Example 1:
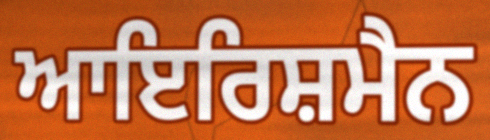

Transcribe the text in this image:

ਆਇਰਿਸ਼ਮੈਨ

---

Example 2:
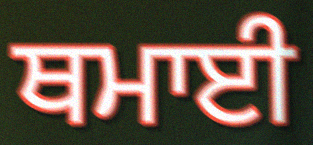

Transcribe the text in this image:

ਥਮਾਈ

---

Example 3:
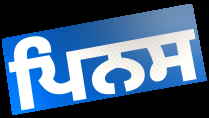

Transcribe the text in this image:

ਪਿਨਸ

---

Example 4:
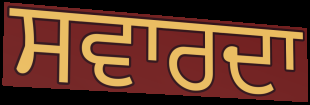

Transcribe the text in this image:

ਸਵਾਰਦਾ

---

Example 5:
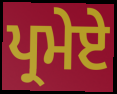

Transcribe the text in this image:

ਪ੍ਰਮੇਏ